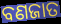
ବଣଜାତ